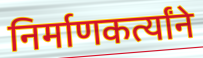
निर्माणकर्त्यांने